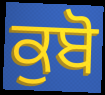
ਕੁਬੋ